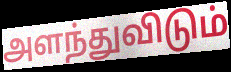
அளந்துவிடும்